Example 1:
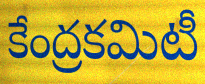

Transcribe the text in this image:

కేంద్రకమిటీ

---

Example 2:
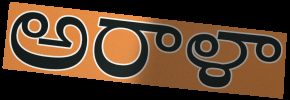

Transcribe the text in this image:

అరాళా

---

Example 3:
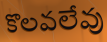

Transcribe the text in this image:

కొలవలేవు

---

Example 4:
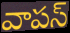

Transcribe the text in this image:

వాపస్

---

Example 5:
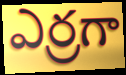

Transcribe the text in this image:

ఎర్రగా